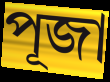
পূজা